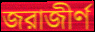
জরাজীর্ণ